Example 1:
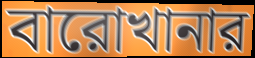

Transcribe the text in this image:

বারোখানার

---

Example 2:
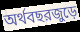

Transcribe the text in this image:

অর্থবছরজুড়ে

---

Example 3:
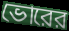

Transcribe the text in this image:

ভোরের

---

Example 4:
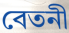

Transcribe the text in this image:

বেতনী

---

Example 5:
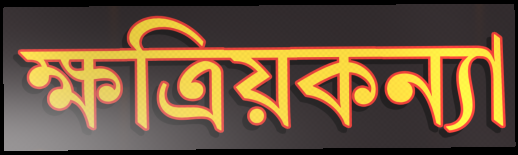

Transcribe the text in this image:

ক্ষত্রিয়কন্যা